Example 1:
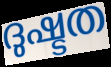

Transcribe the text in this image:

ദുഷ്ടത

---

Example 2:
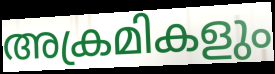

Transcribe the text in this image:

അക്രമികളും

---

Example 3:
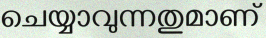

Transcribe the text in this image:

ചെയ്യാവുന്നതുമാണ്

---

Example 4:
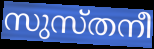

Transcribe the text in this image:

സുസ്തനീ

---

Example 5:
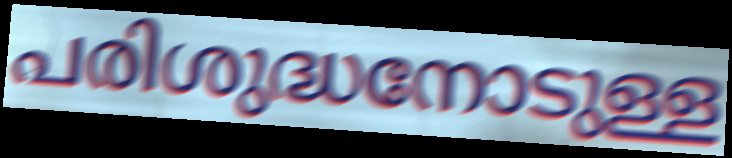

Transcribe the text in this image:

പരിശുദ്ധനോടുള്ള